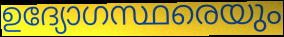
ഉദ്യോഗസ്ഥരെയും